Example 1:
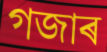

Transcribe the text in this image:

গজাৰ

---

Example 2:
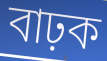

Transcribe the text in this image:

বাঢ়ক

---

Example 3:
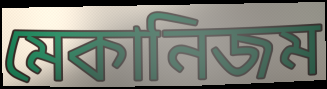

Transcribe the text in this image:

মেকানিজম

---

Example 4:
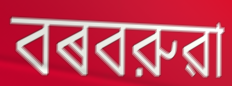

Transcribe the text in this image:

বৰবৰুৱা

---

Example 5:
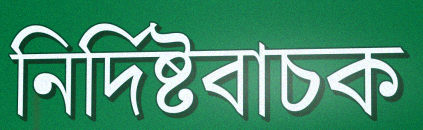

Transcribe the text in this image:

নিৰ্দিষ্টবাচক